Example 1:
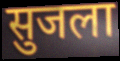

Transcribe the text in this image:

सुजला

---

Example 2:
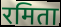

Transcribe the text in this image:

रमिता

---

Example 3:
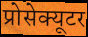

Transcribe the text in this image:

प्रोसेक्यूटर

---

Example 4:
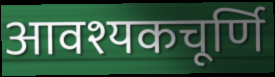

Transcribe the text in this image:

आवश्यकचूर्णि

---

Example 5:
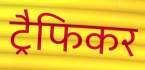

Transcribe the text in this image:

ट्रैफिकर